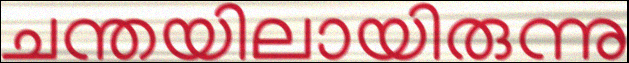
ചന്തയിലായിരുന്നു